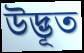
উদ্ভূত